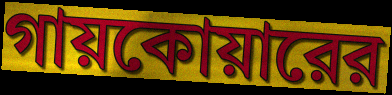
গায়কোয়ারের